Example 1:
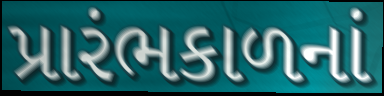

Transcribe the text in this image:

પ્રારંભકાળનાં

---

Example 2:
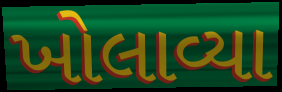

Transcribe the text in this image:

ખોલાવ્યા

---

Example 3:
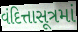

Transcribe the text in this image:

વંદિત્તાસૂત્રમાં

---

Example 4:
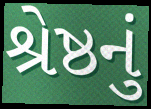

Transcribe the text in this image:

શ્રેષ્ઠનું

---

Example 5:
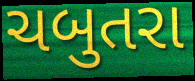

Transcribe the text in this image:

ચબુતરા